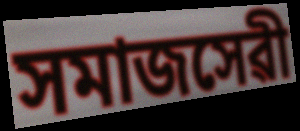
সমাজসেৱী